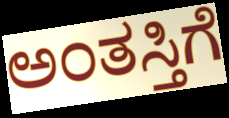
ಅಂತಸ್ತಿಗೆ